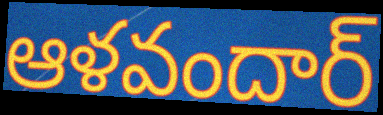
ఆళవందార్